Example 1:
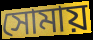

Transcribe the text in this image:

সোমায়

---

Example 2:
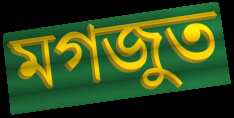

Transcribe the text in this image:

মগজুত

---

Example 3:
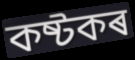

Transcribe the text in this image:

কষ্টকৰ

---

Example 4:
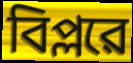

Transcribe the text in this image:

বিপ্লৱে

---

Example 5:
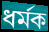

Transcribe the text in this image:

ধৰ্মক